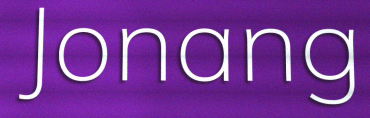
Jonang